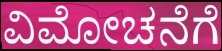
ವಿಮೋಚನೆಗೆ